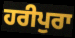
ਹਰੀਪੁਰਾ